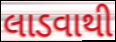
લાડવાથી